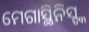
ମେଗାସ୍ଥିନିସ୍ଙ୍କ